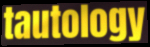
tautology